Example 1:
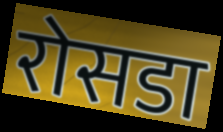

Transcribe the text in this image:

रोसडा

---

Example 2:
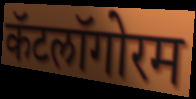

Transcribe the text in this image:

कॅटलॉगोरम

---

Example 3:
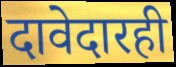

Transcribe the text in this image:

दावेदारही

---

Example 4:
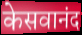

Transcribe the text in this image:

केसवानंद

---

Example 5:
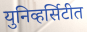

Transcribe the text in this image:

युनिव्हर्सिटीत